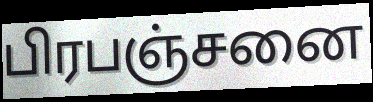
பிரபஞ்சனை